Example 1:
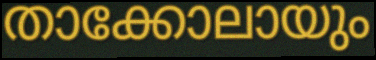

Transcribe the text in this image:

താക്കോലായും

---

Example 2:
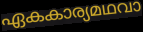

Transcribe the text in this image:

ഏകകാര്യമഥവാ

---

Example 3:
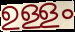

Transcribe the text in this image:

ഉള്ളം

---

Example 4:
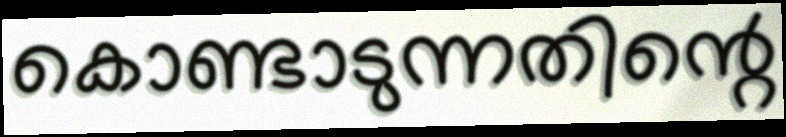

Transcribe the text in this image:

കൊണ്ടാടുന്നതിന്റെ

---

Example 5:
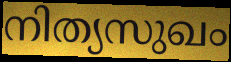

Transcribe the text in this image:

നിത്യസുഖം